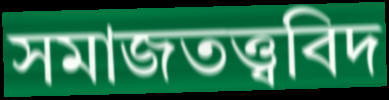
সমাজতত্ত্ববিদ